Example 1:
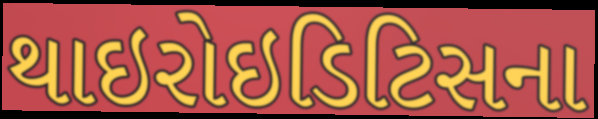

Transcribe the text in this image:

થાઇરોઇડિટિસના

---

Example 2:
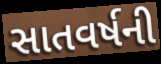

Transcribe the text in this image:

સાતવર્ષની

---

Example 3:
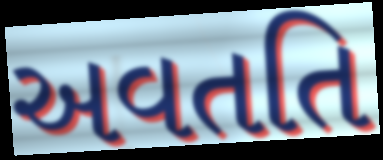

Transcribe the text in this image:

અવતતિ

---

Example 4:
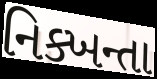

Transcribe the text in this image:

નિક્ખન્તા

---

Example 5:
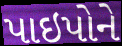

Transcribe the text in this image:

પાઇપોને